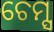
ଚେମ୍ସ